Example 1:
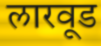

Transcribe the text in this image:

लारवूड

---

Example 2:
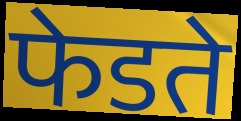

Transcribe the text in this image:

फेडते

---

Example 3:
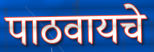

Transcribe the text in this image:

पाठवायचे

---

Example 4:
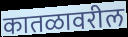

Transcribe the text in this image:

कातळावरील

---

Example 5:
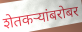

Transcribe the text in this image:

शेतकर्‍यांबरोबर